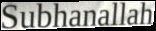
Subhanallah